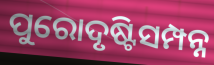
ପୁରୋଦୃଷ୍ଟିସମ୍ପନ୍ନ